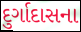
દુર્ગાદાસના